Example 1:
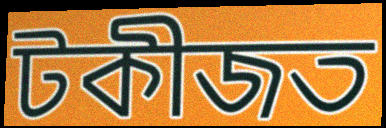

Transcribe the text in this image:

টকীজত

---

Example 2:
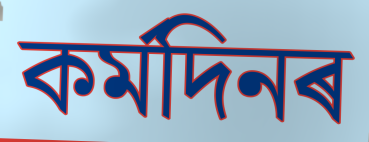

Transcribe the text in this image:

কৰ্মদিনৰ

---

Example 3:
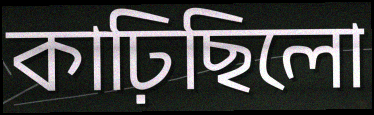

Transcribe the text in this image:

কাঢ়িছিলো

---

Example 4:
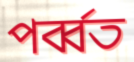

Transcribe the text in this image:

পৰ্ব্বত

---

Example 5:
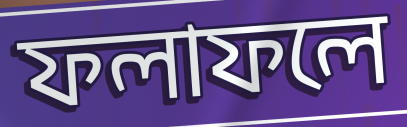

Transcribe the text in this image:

ফলাফলে